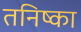
तनिष्का